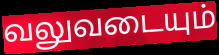
வலுவடையும்